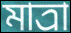
মাত্ৰা